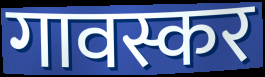
गावस्कर